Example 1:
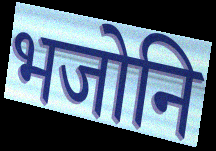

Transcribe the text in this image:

भजोनि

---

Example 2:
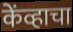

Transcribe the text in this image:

केंव्हाचा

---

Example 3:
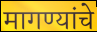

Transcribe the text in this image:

मागण्यांचे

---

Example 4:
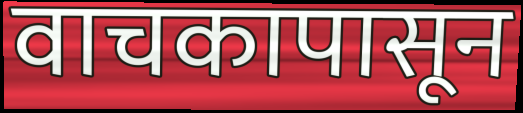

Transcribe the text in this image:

वाचकापासून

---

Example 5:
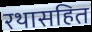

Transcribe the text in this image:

रथासहित